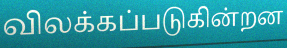
விலக்கப்படுகின்றன